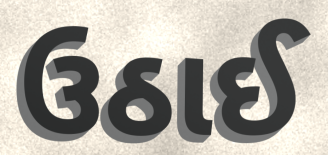
ઉઠાઈ